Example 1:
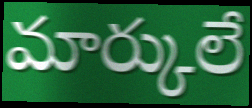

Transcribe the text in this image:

మార్కులే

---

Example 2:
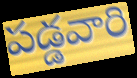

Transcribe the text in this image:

పడ్డవారి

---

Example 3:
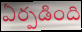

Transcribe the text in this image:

ఏర్పడింది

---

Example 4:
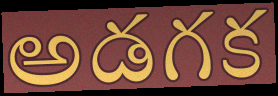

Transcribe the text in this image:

అడగక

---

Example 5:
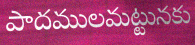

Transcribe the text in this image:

పాదములమట్టునకు